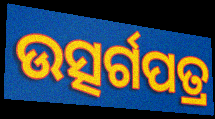
ଉତ୍ସର୍ଗପତ୍ର